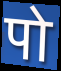
पो